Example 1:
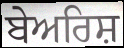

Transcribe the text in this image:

ਬੇਅਰਿਸ਼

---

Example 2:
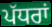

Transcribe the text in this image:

ਪੱਧਰਾਂ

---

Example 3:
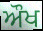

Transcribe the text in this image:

ਔਖ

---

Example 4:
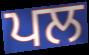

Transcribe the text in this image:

ਪਲ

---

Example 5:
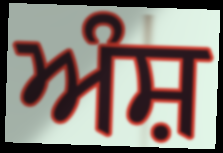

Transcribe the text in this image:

ਅੰਸ਼